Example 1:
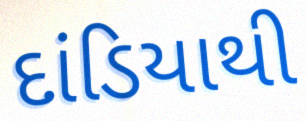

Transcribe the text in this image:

દાંડિયાથી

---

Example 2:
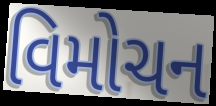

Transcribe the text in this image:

વિમોચન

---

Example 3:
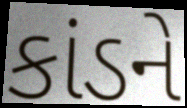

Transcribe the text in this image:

કાંડને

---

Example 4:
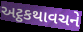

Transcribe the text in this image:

અટ્ઠકથાવચને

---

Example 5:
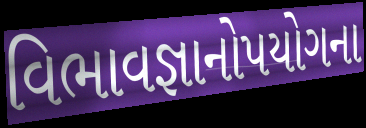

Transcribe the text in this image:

વિભાવજ્ઞાનોપયોગના